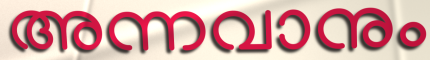
അന്നവാനും